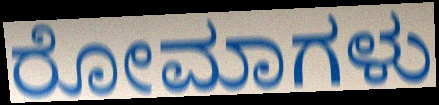
ರೋಮಾಗಳು